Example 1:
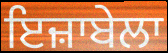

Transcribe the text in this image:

ਇਜ਼ਾਬੇਲਾ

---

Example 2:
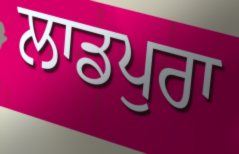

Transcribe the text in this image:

ਲਾਡਪੁਰਾ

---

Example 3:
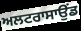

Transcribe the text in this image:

ਅਲਟਰਾਸਾਉਂਡ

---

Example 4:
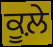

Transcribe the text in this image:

ਕੂਲ਼ੇ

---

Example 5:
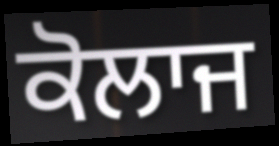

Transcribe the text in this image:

ਕੋਲਾਜ